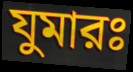
যুমারঃ